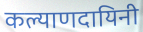
कल्याणदायिनी